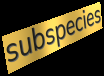
subspecies